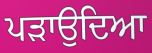
ਪੜਾਉਦਿਆ